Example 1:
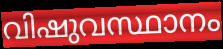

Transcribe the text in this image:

വിഷുവസ്ഥാനം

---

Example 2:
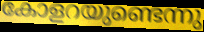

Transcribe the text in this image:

കോളറയുണ്ടെന്നു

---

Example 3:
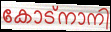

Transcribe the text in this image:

കോട്നാനി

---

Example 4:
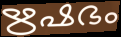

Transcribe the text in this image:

ഋഷഭം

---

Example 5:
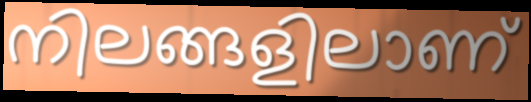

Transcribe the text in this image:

നിലങ്ങളിലാണ്